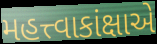
મહત્ત્વાકાંક્ષાએ